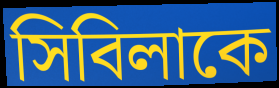
সিবিলাকে